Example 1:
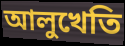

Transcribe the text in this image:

আলুখেতি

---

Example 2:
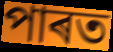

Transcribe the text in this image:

পাৰত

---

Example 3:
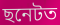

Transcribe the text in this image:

ছনেটত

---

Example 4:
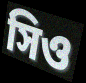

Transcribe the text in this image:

সিও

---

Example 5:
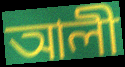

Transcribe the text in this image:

আলী